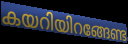
കയറിയിറങ്ങേണ്ട